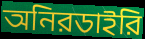
অনিরডাইরি